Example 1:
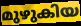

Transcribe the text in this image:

മുഴുകിയ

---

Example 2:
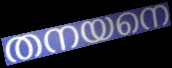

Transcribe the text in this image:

തനയനെ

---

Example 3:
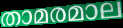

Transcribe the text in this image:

താമരമാല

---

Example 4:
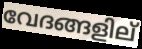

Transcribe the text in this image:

വേദങ്ങളില്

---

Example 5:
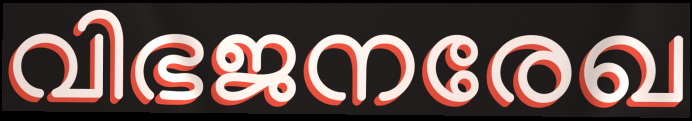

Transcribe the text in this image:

വിഭജനരേഖ